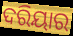
ଦରିୟାର